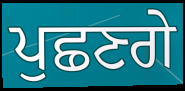
ਪੁਛਣਗੇ